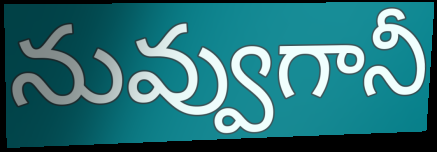
నువ్వుగానీ